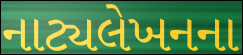
નાટ્યલેખનના